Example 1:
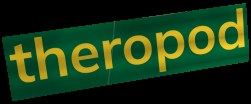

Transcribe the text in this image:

theropod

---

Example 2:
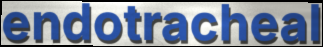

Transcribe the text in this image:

endotracheal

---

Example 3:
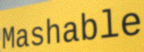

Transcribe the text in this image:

Mashable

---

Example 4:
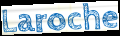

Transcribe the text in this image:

Laroche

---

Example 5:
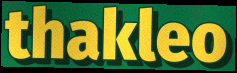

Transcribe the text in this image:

thakleo